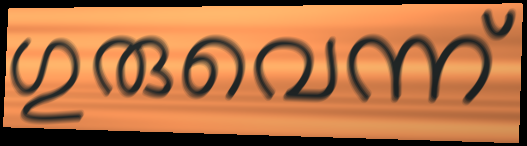
ഗുരുവെന്ന്